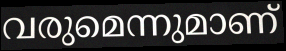
വരുമെന്നുമാണ്